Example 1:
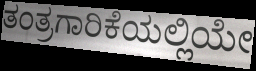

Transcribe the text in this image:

ತಂತ್ರಗಾರಿಕೆಯಲ್ಲಿಯೇ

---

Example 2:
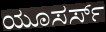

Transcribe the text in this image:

ಯೂಸರ್ಸ್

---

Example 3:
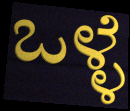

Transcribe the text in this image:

ಒಳ್ಳೆ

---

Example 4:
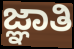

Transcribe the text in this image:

ಜ್ಞಾತಿ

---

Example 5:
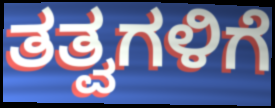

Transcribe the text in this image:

ತತ್ವಗಳಿಗೆ